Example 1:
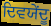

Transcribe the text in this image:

ਦਿਵਯੇਂਦੂ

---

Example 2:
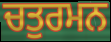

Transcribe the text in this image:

ਚਤੁਰਮਨ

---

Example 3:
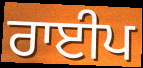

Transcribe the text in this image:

ਰਾਈਪ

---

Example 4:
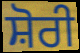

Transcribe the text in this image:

ਸ਼ੋਰੀ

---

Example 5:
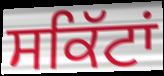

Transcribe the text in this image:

ਸਕਿੱਟਾਂ